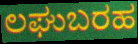
ಲಘುಬರಹ